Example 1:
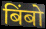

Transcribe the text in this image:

बिंबो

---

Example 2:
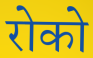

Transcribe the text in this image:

रोको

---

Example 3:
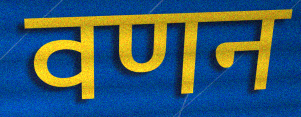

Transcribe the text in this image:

वणन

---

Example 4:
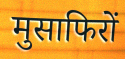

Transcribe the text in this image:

मुसाफिरों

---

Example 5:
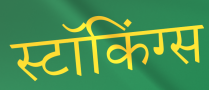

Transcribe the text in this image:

स्टॉकिंग्स